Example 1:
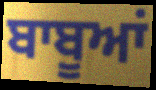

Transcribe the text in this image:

ਬਾਬੂਆਂ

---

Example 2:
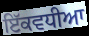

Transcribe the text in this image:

ਇੱਕਵਧੀਆ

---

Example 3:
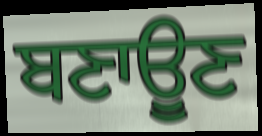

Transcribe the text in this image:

ਬਣਾਊਣ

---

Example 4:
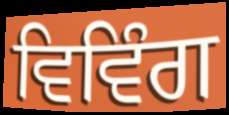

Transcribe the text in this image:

ਵਿਵਿੰਗ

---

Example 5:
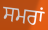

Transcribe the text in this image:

ਸਮਰਾਂ